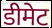
डीमेट